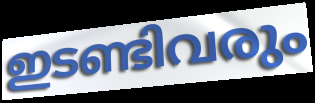
ഇടണ്ടിവരും